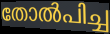
തോൽപിച്ച